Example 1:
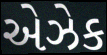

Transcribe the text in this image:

એઝેક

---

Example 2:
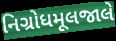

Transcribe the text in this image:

નિગ્રોધમૂલજાલે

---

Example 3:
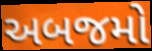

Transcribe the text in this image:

અબજમો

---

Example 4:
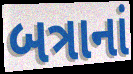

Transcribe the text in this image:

બત્રાનાં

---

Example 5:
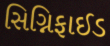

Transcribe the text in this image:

સિગ્નિફાઈડ